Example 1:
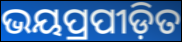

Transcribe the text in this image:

ଭୟପ୍ରପୀଡ଼ିତ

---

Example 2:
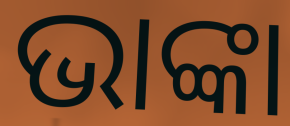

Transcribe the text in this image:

ଭାଙ୍କା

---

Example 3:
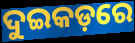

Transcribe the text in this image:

ଦୁଇକଡ଼ରେ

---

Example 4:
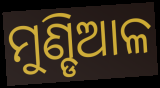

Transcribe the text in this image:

ମୁଣ୍ଡିଆଳ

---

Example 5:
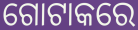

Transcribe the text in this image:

ଗୋଟାକରେ